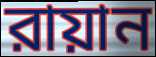
রায়ান